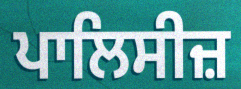
ਪਾਲਿਸੀਜ਼